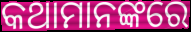
କଥାମାନଙ୍କରେ